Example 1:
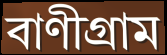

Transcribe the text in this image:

বাণীগ্রাম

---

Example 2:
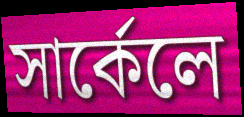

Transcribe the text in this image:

সার্কেলে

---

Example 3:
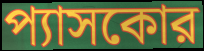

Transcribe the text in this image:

প্যাসকোর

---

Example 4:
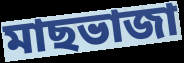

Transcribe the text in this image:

মাছভাজা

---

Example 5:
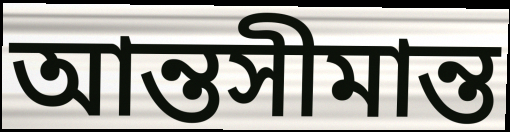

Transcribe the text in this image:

আন্তসীমান্ত